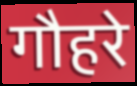
गौहरे